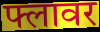
फ्लावर